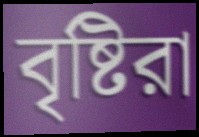
বৃষ্টিরা